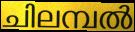
ചിലമ്പൽ